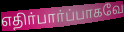
எதிர்பார்ப்பாகவே